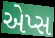
એપ્સ